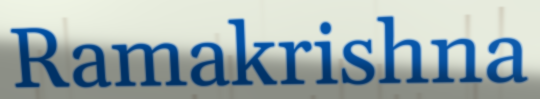
Ramakrishna